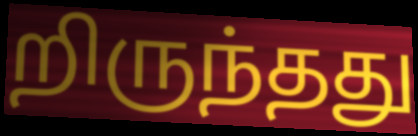
றிருந்தது